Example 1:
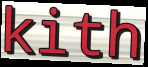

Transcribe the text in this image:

kith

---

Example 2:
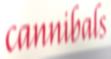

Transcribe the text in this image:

cannibals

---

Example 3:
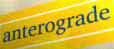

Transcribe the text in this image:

anterograde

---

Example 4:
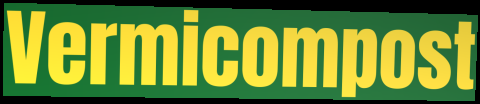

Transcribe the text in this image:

Vermicompost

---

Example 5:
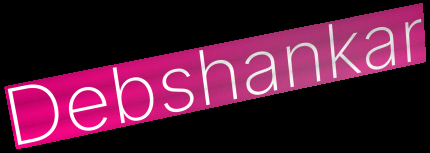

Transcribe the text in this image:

Debshankar